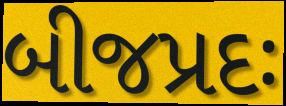
બીજપ્રદઃ